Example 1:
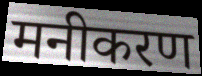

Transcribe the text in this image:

मनीकरण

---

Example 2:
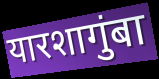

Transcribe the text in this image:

यारशागुंबा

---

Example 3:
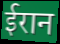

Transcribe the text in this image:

ईरान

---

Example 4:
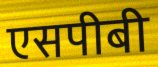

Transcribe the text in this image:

एसपीबी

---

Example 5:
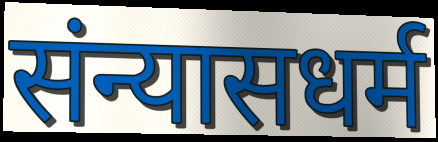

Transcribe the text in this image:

संन्यासधर्म